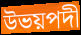
উভয়পদী